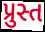
પ્રુસ્ત